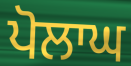
ਪੋਲਾਘ